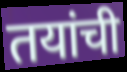
तयांची